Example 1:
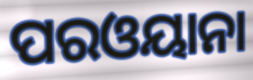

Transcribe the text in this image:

ପରଓୟାନା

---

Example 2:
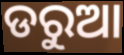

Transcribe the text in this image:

ଡରୁଆ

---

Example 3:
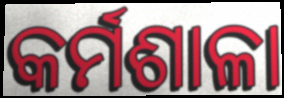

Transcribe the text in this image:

କର୍ମଶାଳା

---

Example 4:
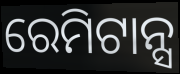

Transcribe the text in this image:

ରେମିଟାନ୍ସ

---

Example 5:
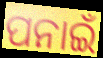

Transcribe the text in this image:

ପନାଇଁ